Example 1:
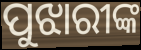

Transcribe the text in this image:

ପୁଝାରୀଙ୍କ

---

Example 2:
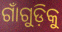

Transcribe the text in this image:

ଗାଁଗୁଡ଼ିକୁ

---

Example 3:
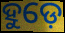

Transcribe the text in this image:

ହୁଡ଼େ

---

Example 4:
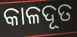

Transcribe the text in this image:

କାଳଦୂତ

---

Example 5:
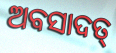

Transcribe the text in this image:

ଅବସାଦତ୍